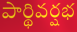
పార్థివర్షభ